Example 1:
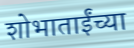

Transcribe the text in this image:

शोभाताईंच्या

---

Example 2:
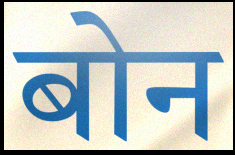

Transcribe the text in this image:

बोन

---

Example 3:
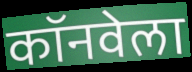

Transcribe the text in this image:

कॉनवेला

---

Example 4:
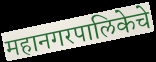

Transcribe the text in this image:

महानगरपालिकेचे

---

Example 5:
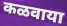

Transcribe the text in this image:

कळवाया